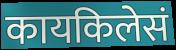
कायकिलेसं